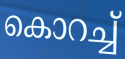
കൊറച്ച്